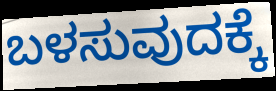
ಬಳಸುವುದಕ್ಕೆ